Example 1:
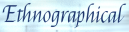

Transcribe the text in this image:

Ethnographical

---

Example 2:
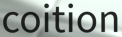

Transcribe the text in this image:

coition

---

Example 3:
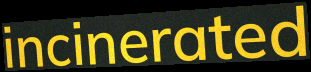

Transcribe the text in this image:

incinerated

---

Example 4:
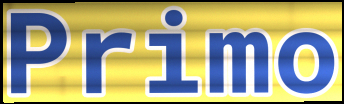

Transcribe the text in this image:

Primo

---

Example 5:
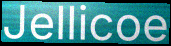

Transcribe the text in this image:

Jellicoe